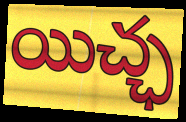
యిచ్ఛ